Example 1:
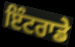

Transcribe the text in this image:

ਇੰਟਰਾਡੇ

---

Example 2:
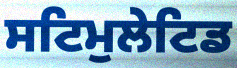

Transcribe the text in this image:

ਸਟਿਮੁਲੇਟਿਡ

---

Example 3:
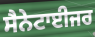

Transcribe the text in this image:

ਸੈਨੇਟਾਈਜਰ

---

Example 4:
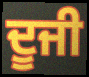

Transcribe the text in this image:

ਦੂਜੀ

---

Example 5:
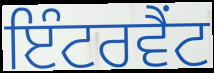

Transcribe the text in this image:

ਇੰਟਰਵੈਂਟ